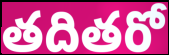
తదితరో